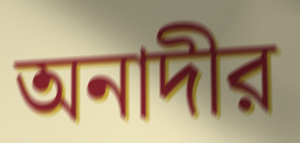
অনাদীর